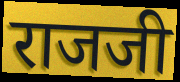
राजजी